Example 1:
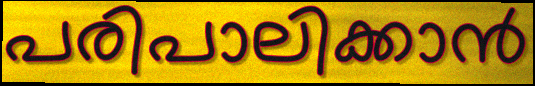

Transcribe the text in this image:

പരിപാലിക്കാൻ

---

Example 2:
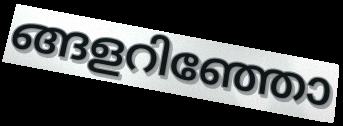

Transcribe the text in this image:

ങ്ങളറിഞ്ഞോ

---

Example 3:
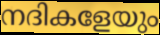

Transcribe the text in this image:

നദികളേയും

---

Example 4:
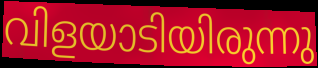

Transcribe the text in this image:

വിളയാടിയിരുന്നു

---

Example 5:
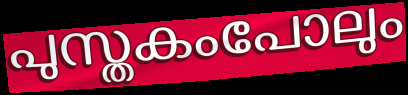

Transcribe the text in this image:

പുസ്തകംപോലും